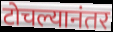
टोचल्यानंतर